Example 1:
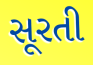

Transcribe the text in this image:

સૂરતી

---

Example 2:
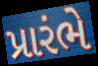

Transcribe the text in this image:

પ્રારંભે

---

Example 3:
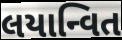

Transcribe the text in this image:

લયાન્વિત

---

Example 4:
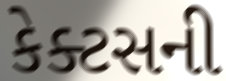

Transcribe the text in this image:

કેક્ટસની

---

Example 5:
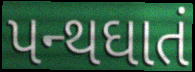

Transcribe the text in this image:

પન્થઘાતં